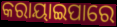
କରାୟାଇପାରେ